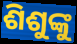
ଶିଶୁଙ୍କୁ